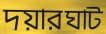
দয়ারঘাট